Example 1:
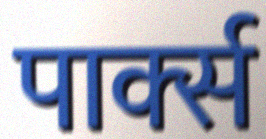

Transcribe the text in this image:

पार्क्‍स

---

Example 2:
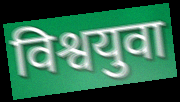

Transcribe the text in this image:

विश्वयुवा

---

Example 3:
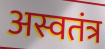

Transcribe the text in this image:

अस्वतंत्र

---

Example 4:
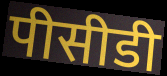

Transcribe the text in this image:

पीसीडी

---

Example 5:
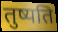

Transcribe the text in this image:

तुष्यति